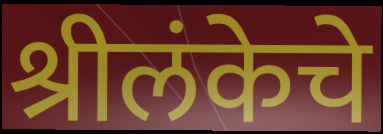
श्रीलंकेचे